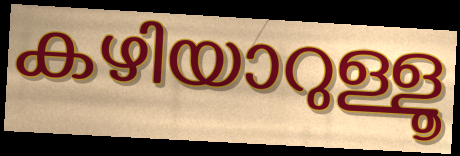
കഴിയാറുള്ളൂ